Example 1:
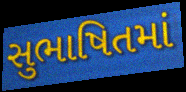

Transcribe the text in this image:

સુભાષિતમાં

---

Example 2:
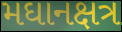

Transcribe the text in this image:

મઘાનક્ષત્ર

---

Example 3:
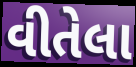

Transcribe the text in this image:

વીતેલા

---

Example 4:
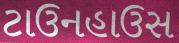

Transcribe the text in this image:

ટાઉનહાઉસ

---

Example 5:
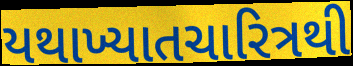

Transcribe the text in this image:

યથાખ્યાતચારિત્રથી